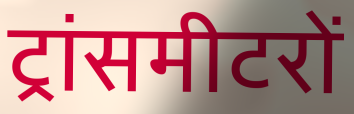
ट्रांसमीटरों